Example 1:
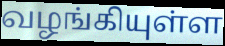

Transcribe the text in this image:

வழங்கியுள்ள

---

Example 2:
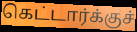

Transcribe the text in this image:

கெட்டார்க்குச்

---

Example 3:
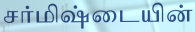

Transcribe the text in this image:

சர்மிஷ்டையின்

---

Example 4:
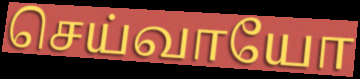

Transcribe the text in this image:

செய்வாயோ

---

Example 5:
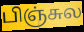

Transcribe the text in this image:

பிஞ்சுல